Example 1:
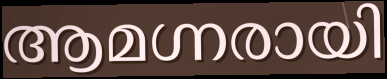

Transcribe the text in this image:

ആമഗ്നരായി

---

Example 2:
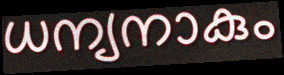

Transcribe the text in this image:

ധന്യനാകും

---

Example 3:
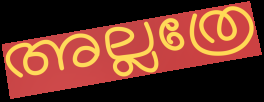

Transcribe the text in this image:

അല്ലത്രേ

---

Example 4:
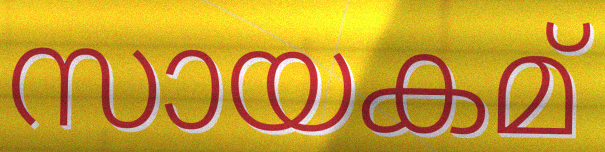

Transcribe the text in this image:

സായകമ്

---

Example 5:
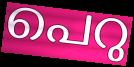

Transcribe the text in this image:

പെറു